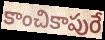
కాంచికాపురే